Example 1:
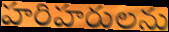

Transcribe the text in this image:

హరిహరులను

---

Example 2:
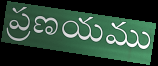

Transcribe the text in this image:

ప్రణయము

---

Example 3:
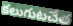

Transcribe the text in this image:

కలుగుటచేత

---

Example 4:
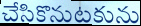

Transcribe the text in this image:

చేసికొనుటకును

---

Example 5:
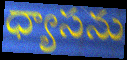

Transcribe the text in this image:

ధ్యాసను